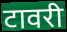
टावरी